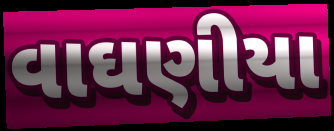
વાઘણીયા